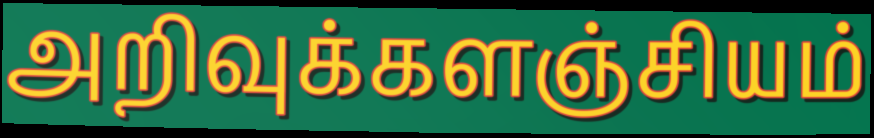
அறிவுக்களஞ்சியம்